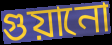
গুয়ানো